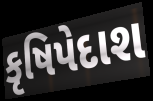
કૃષિપેદાશ